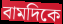
বামদিকে